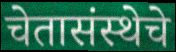
चेतासंस्थेचे